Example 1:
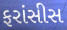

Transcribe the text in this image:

ફરાંસીસ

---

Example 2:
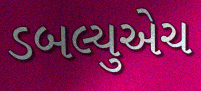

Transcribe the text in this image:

ડબલ્યુએચ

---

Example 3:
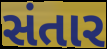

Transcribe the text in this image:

સંતાર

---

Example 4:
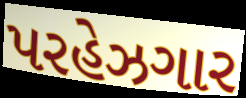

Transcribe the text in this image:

પરહેઝગાર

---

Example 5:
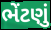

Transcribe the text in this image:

ભેંટણું